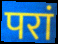
परां